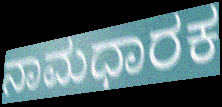
ನಾಮಧಾರಕ